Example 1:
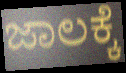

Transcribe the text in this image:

ಜಾಲಕ್ಕೆ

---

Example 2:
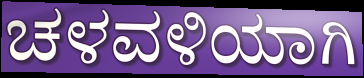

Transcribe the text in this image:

ಚಳವಳಿಯಾಗಿ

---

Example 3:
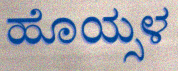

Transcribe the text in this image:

ಹೊಯ್ಸಳ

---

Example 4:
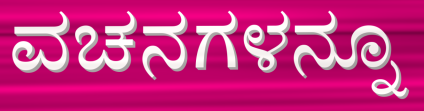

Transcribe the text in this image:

ವಚನಗಳನ್ನೂ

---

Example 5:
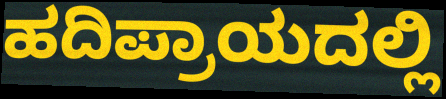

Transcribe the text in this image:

ಹದಿಪ್ರಾಯದಲ್ಲಿ